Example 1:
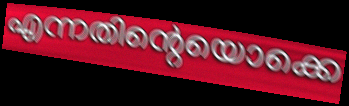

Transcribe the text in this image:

എന്നതിന്റെയൊക്കെ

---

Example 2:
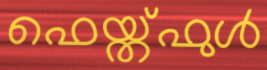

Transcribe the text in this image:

ഫെയ്ത്ഫുൾ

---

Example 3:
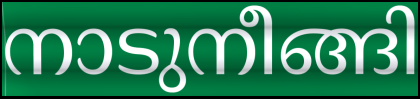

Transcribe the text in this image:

നാടുനീങ്ങി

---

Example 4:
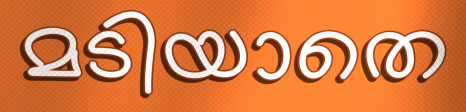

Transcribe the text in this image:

മടിയാതെ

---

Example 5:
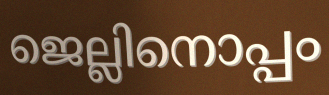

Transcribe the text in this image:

ജെല്ലിനൊപ്പം